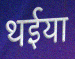
थईया